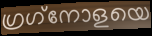
ഗ്രഗ്‌നോളയെ